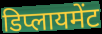
डिप्लायमेंट